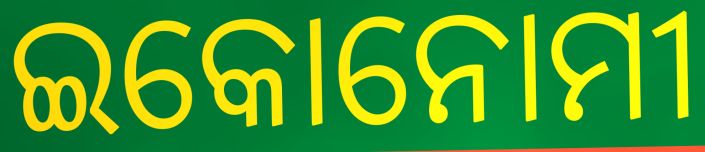
ଇକୋନୋମୀ